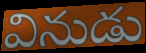
వినుడు